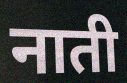
नाती